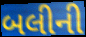
બલીની